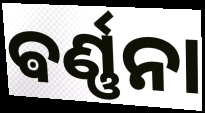
ଵର୍ଣ୍ଣନା